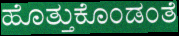
ಹೊತ್ತುಕೊಂಡಂತೆ